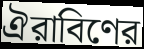
ঐরাবিণের